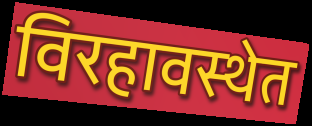
विरहावस्थेत